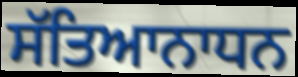
ਸੱਤਿਆਨਾਧਨ